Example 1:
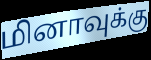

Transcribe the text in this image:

மினாவுக்கு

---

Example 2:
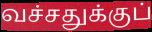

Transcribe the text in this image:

வச்சதுக்குப்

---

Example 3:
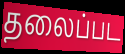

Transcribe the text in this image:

தலைப்பட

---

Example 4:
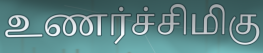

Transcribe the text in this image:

உணர்ச்சிமிகு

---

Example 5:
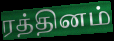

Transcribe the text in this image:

ரத்தினம்